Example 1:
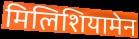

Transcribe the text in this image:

मिलिशियामेन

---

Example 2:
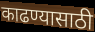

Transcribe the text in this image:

काढण्यासाठी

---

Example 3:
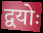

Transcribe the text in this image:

द्वयोः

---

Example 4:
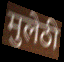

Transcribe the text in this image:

मुलेठी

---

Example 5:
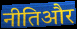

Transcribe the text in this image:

नीतिऔर